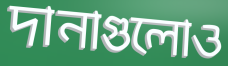
দানাগুলোও